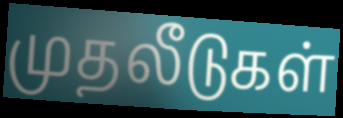
முதலீடுகள்